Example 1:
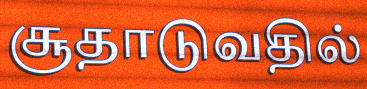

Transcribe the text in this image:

சூதாடுவதில்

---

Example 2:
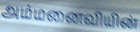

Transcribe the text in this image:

அம்மனைவியின்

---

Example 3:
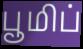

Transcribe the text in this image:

பூமிப்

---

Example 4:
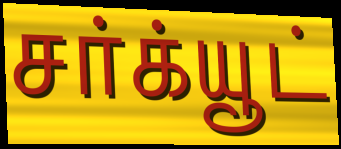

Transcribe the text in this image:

சர்க்யூட்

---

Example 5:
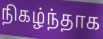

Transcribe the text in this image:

நிகழ்ந்தாக